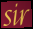
sir